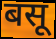
बसू